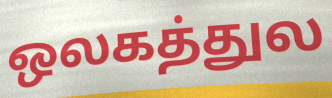
ஒலகத்துல